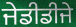
ਜੇਡੀਡੀਜੇ